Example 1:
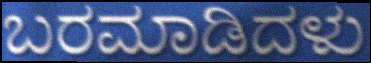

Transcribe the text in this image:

ಬರಮಾಡಿದಳು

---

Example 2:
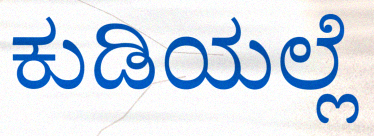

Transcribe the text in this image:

ಕುಡಿಯಲ್ಲೆ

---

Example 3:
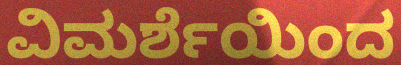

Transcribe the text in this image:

ವಿಮರ್ಶೆಯಿಂದ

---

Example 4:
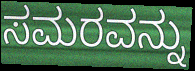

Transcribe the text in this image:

ಸಮರವನ್ನು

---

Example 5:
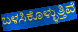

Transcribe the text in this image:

ಬಳಸಿಕೊಳ್ಳುತ್ತಿವೆ